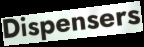
Dispensers